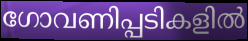
ഗോവണിപ്പടികളിൽ